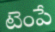
టెంపే